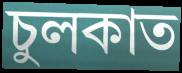
চুলকাত